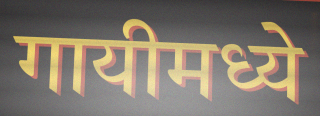
गायीमध्ये